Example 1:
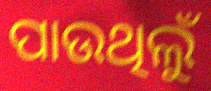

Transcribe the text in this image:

ପାଉଥିଲୁଁ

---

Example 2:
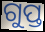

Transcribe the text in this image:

ଗୁପ୍ତ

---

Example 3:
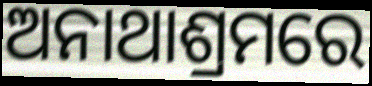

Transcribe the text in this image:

ଅନାଥାଶ୍ରମରେ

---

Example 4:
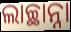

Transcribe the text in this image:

ଲାଚ୍ଛାନ୍ନା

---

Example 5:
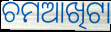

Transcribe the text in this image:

ଚମଆଖିଟା